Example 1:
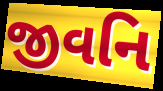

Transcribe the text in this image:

જીવનિ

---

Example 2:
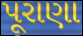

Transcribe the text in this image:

પૂરાણા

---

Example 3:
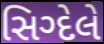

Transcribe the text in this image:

સિગ્દેલે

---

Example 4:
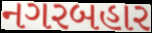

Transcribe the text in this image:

નગરબહાર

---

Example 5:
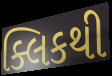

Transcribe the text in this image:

ક્લિકથી